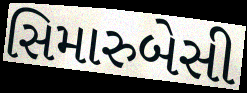
સિમારુબેસી